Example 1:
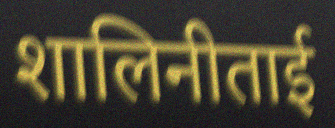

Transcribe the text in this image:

शालिनीताई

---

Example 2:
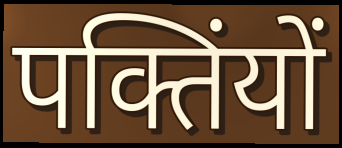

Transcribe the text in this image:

पक्तिंयों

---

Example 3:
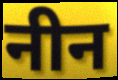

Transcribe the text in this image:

नीन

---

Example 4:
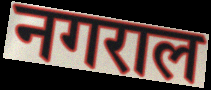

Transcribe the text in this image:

नगराल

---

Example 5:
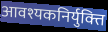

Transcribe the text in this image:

आवश्यकनिर्युक्ति